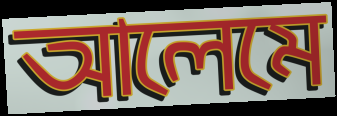
আলেমে